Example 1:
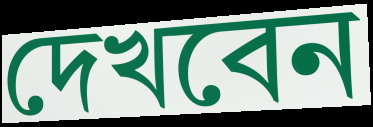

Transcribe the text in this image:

দেখবেন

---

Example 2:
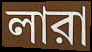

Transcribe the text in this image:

লারা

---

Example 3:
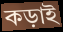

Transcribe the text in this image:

কড়াই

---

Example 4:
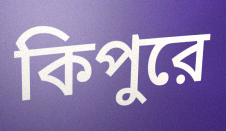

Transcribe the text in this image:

কিপুরে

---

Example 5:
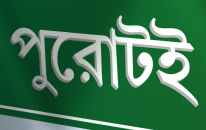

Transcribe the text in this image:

পুরোটই